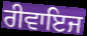
ਰੀਵਾਇਜ